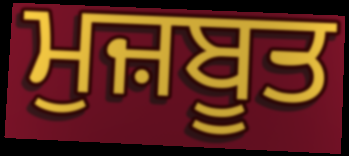
ਮੁਜ਼ਬੂਤ